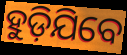
ହୁଡ଼ିଯିବେ